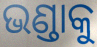
ଭଣ୍ଡାକୁ